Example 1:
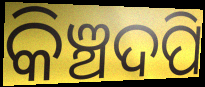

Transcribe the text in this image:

କିଞ୍ଚଦପି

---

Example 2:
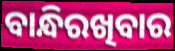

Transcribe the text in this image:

ବାନ୍ଧିରଖିବାର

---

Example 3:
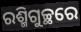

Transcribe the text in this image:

ରଶ୍ମିଗୁଚ୍ଛରେ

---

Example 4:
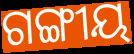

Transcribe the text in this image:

ଗଙ୍ଗୀୟ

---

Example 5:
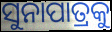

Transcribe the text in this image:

ସୁନାପାତ୍ରକୁ